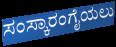
ಸಂಸ್ಕಾರಂಗೈಯಲು